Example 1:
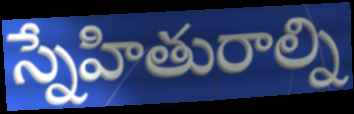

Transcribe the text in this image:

స్నేహితురాల్ని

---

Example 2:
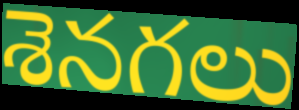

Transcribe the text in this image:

శెనగలు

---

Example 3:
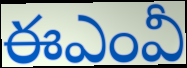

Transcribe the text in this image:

ఈఎంవీ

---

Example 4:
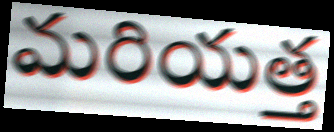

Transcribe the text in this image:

మరియత్త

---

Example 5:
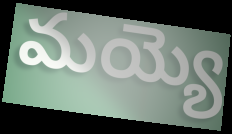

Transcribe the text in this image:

మయ్యె